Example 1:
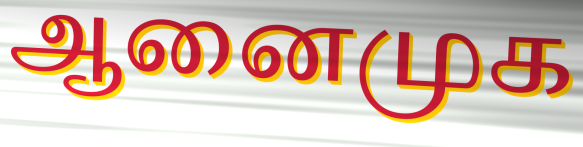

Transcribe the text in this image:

ஆனைமுக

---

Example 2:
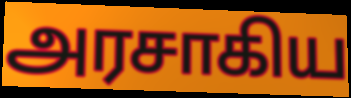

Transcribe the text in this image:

அரசாகிய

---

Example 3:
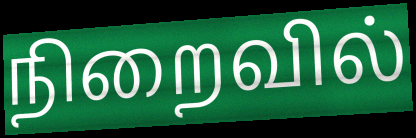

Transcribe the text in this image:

நிறைவில்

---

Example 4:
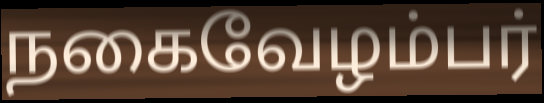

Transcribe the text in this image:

நகைவேழம்பர்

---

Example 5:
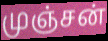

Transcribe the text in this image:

முஞ்சன்